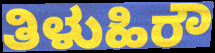
ತಿಳುಹಿರೌ